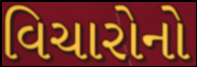
વિચારોનો